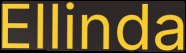
Ellinda